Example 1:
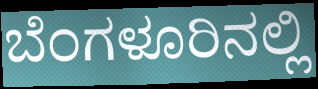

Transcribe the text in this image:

ಬೆಂಗಳೂರಿನಲ್ಲಿ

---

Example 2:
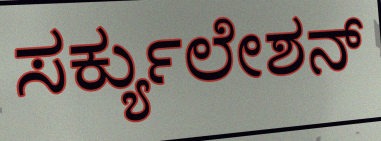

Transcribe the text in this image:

ಸರ್ಕ್ಯುಲೇಶನ್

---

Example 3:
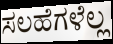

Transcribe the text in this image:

ಸಲಹೆಗಳೆಲ್ಲ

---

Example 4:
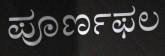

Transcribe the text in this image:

ಪೂರ್ಣಫಲ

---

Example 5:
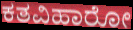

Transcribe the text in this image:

ಕತವಿಹಾರೋ